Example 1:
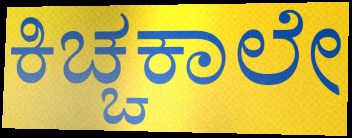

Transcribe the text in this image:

ಕಿಚ್ಚಕಾಲೇ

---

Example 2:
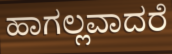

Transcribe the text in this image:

ಹಾಗಲ್ಲವಾದರೆ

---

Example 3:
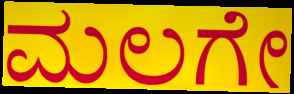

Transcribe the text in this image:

ಮಲಗೇ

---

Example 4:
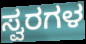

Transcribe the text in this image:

ಸ್ವರಗಳ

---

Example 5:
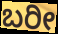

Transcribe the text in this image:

ಬರೀ